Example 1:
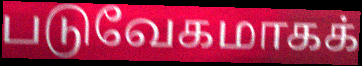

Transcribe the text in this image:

படுவேகமாகக்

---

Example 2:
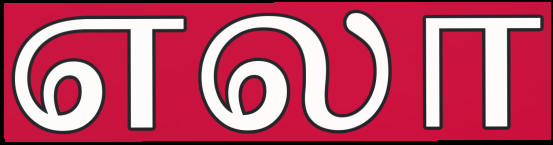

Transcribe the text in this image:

எலா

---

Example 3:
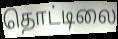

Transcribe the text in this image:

தொட்டிலை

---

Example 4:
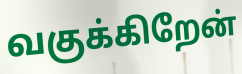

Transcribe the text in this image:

வகுக்கிறேன்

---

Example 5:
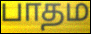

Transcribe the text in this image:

பாதம